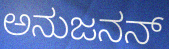
ಅನುಜನನ್